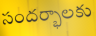
సందర్భాలకు